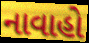
નાવાહો